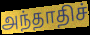
அந்தாதிச்